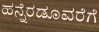
ಹನ್ನೆರಡೂವರೆಗೆ